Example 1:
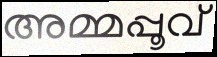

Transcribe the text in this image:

അമ്മപ്പൂവ്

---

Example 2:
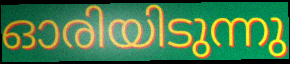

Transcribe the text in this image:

ഓരിയിടുന്നു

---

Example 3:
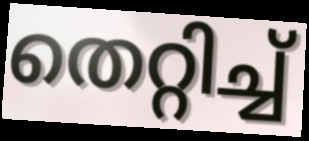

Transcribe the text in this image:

തെറ്റിച്ച്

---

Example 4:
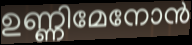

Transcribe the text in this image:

ഉണ്ണിമേനോൻ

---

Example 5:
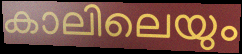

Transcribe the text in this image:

കാലിലെയും